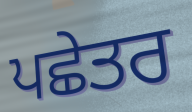
ਪਛੇਤਰ